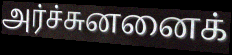
அர்ச்சுனனைக்